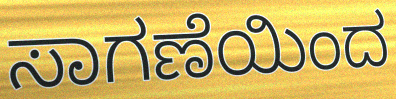
ಸಾಗಣೆಯಿಂದ